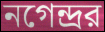
নগেন্দ্রর